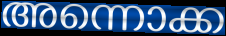
അന്നൊക്ക